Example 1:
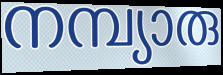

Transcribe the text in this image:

നമ്പ്യാരു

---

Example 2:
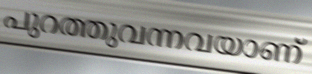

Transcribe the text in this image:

പുറത്തുവന്നവയാണ്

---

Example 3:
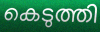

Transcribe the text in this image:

കെടുത്തി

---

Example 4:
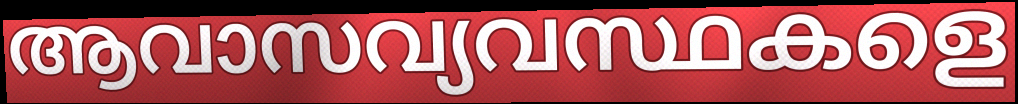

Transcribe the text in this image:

ആവാസവ്യവസ്ഥകളെ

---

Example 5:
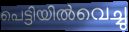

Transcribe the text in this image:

പെട്ടിയിൽവെച്ചു